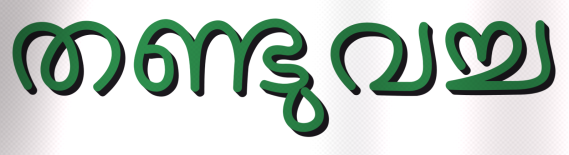
തണ്ടുവച്ച